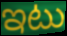
ఇటు